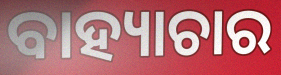
ବାହ୍ୟାଚାର